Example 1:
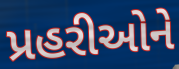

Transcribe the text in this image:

પ્રહરીઓને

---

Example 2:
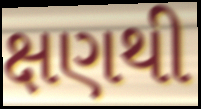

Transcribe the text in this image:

ક્ષણથી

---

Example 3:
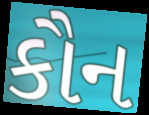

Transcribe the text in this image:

કૌન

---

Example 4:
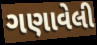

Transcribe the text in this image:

ગણાવેલી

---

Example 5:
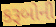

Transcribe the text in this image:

કરૂબોની